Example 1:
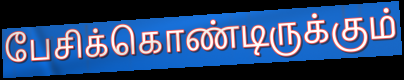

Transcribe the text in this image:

பேசிக்கொண்டிருக்கும்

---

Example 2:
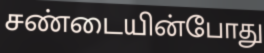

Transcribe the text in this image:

சண்டையின்போது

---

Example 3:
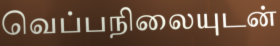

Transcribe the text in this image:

வெப்பநிலையுடன்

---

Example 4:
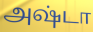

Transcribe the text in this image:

அஷ்டா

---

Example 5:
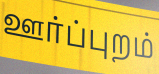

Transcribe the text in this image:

ஊர்ப்புறம்